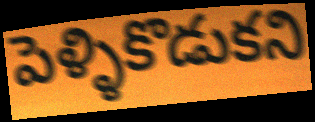
పెళ్ళికొడుకని